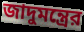
জাদুমন্ত্রের